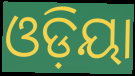
ଓଡ଼ିୟା